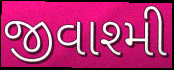
જીવાશ્મી